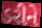
ડરીને